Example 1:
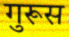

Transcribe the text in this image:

गुरूस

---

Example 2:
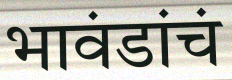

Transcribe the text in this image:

भावंडांचं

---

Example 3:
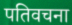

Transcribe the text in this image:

पतिवचना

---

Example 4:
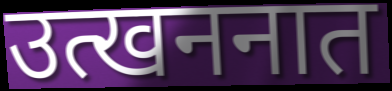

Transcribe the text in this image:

उत्खननात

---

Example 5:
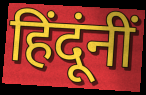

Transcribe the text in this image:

हिंदूंनीं